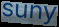
suny